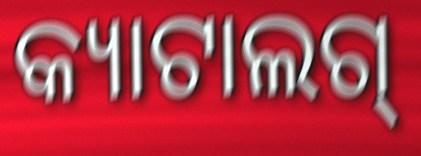
କ୍ୟାଟାଲଗ୍